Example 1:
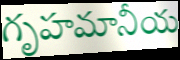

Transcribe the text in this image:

గృహమానీయ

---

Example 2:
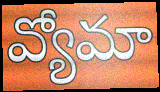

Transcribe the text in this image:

వ్యోమా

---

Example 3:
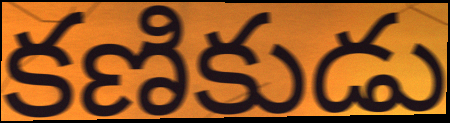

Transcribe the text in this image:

కణికుడు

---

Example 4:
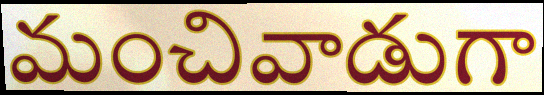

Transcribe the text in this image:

మంచివాడుగా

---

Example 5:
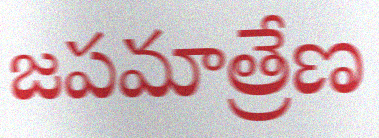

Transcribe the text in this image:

జపమాత్రేణ